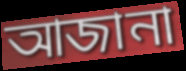
আজানা